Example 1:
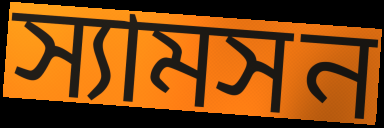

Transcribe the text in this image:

স্যামসন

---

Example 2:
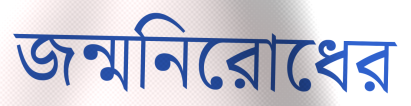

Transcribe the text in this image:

জন্মনিরোধের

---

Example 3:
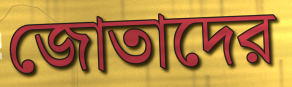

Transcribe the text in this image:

জোতাদের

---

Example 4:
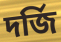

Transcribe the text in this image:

দর্জি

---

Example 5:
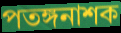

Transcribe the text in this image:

পতঙ্গনাশক